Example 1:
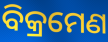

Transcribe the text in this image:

ବିକ୍ରମେଣ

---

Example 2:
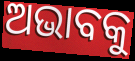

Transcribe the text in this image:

ଅଭାବକୁ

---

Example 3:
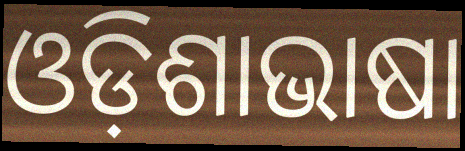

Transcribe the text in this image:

ଓଡ଼ିଶାଭାଷା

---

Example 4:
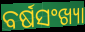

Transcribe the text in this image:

ବର୍ଷସଂଖ୍ୟା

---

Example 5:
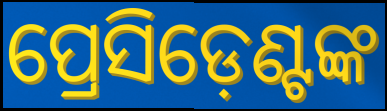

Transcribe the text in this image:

ପ୍ରେସିଡ଼େଣ୍ଟଙ୍କ